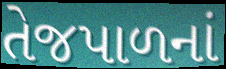
તેજપાળનાં